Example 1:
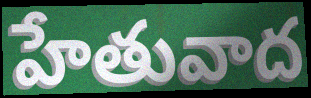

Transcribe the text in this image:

హేతువాద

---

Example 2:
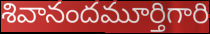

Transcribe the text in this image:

శివానందమూర్తిగారి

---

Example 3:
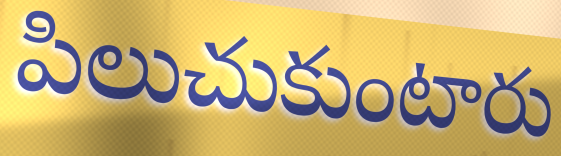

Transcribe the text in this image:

పిలుచుకుంటారు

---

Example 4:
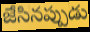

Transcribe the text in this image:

జేసినప్పుడు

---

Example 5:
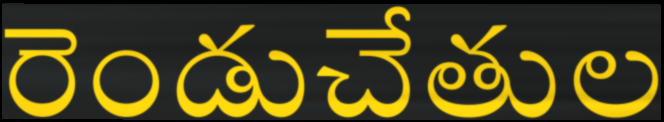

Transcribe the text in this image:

రెండుచేతుల